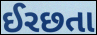
ઈરછતા